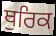
ਥੁਰਿਕ